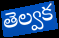
తెల్వక